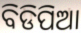
ବିଡିପିଆ